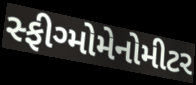
સ્ફીગ્મોમેનોમીટર